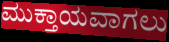
ಮುಕ್ತಾಯವಾಗಲು